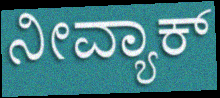
ನೀವ್ಯಾಕ್